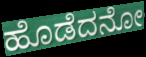
ಹೊಡೆದನೋ